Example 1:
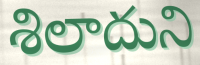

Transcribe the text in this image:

శిలాదుని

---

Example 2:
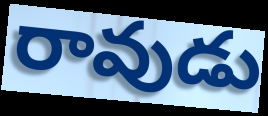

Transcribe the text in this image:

రావుడు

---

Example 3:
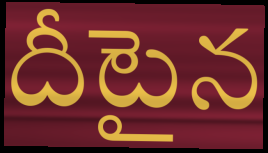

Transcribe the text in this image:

దీటైన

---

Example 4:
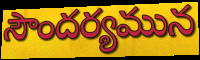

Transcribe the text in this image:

సౌందర్యమున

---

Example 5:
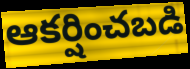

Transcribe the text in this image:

ఆకర్షించబడి